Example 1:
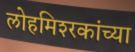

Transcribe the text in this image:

लोहमिश्रकांच्या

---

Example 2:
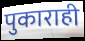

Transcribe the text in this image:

पुकाराही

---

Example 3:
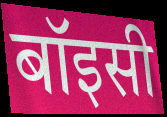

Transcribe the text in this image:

बॉइसी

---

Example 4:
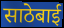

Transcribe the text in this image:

साठेबाई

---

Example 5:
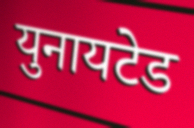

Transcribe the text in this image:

युनायटेड